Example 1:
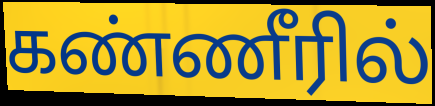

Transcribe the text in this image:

கண்ணீரில்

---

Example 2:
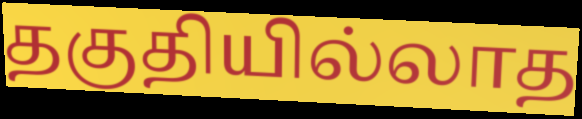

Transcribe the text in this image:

தகுதியில்லாத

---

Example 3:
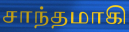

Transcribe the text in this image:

சாந்தமாகி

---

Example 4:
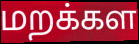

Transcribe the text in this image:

மறக்கள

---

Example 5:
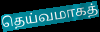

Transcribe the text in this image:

தெய்வமாகத்